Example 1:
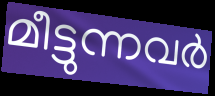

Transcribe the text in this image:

മീട്ടുന്നവർ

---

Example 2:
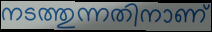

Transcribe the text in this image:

നടത്തുന്നതിനാണ്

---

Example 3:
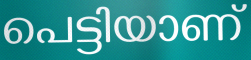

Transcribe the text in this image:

പെട്ടിയാണ്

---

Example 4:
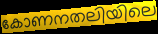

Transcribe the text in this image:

കോണനതലിയിലെ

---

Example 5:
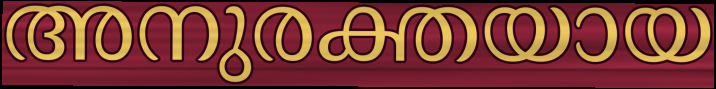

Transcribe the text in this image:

അനുരക്തയായ